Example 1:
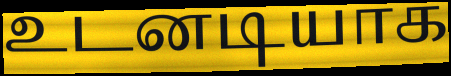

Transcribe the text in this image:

உடனடியாக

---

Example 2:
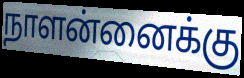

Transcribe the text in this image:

நாளன்னைக்கு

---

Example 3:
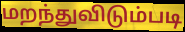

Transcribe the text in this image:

மறந்துவிடும்படி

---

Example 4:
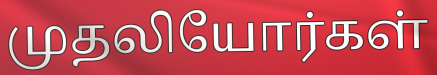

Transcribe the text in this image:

முதலியோர்கள்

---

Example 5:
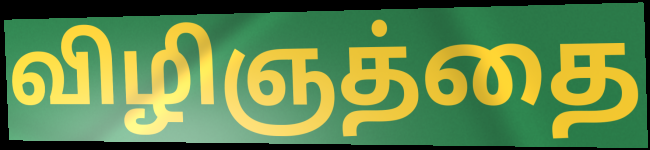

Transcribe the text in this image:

விழிஞத்தை